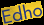
Edho